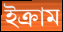
ইক্ৰাম